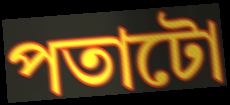
পতাটো